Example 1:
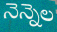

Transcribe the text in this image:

నెన్నెల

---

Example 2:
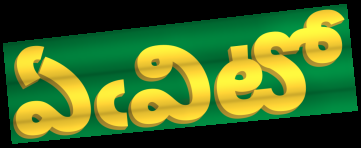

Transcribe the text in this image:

ఏఁవిటో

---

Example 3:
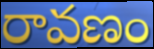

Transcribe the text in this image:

రావణం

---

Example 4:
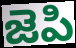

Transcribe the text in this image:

జెపి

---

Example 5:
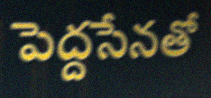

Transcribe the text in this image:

పెద్దసేనతో